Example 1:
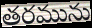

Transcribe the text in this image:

తరమును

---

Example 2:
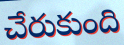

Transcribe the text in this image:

చేరుకుంది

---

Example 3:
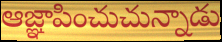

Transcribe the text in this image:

ఆజ్ఞాపించుచున్నాడు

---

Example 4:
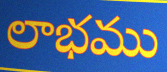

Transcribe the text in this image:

లాభము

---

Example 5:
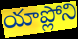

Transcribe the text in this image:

యాప్లోని